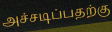
அச்சடிப்பதற்கு